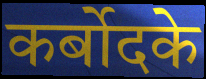
कर्बोदके